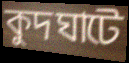
কুদঘাটে